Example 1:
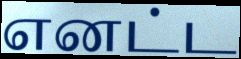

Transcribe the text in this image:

எனட்ட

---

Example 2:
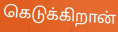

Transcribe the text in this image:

கெடுக்கிறான்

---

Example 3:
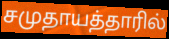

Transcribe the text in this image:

சமுதாயத்தாரில்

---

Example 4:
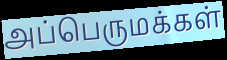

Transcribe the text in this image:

அப்பெருமக்கள்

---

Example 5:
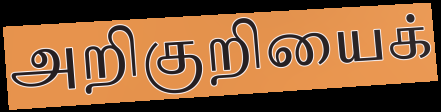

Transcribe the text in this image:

அறிகுறியைக்